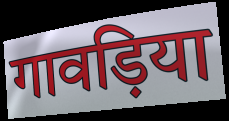
गावड़िया